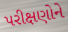
પરીક્ષણોને